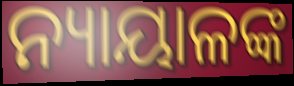
ନ୍ୟାୟାଳଙ୍କ